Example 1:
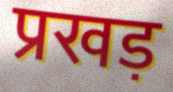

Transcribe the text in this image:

प्रखड़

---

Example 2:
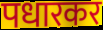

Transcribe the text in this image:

पधारकर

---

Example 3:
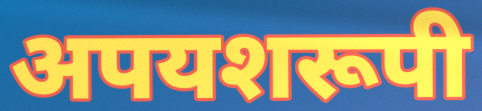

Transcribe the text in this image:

अपयशरूपी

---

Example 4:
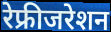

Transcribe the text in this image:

रेफ्रीजरेशन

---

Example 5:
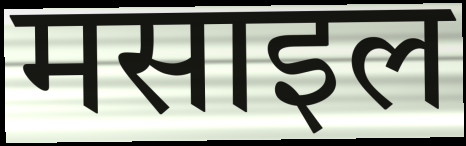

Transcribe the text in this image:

मसाइल